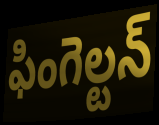
ఫింగెల్టన్